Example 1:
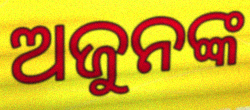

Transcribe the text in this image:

ଅଜୁନଙ୍କ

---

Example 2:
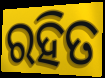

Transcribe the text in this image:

ରହିତ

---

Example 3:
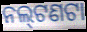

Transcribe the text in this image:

ନଲ୍‍ଟଣଟା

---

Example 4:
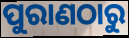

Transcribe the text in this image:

ପୁରାଣଠାରୁ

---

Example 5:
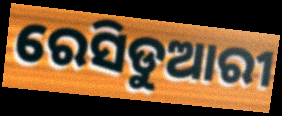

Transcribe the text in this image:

ରେସିଡୁଆରୀ